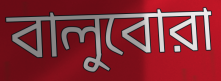
বালুবোরা